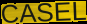
CASEL